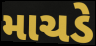
માચડે